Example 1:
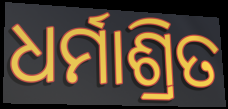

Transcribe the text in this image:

ଧର୍ମାଶ୍ରିତ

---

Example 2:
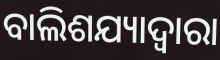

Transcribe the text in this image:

ବାଲିଶଯ୍ୟାଦ୍ଵାରା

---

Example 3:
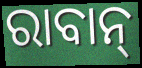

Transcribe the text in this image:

ରାବାନ୍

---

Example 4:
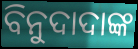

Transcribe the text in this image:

ବିନୁଦାଦାଙ୍କ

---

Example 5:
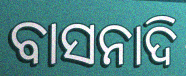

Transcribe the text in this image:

ବାସନାଦି